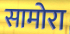
सामोरा